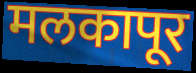
मलकापूर